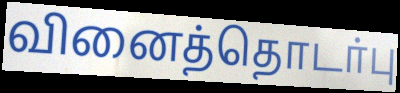
வினைத்தொடர்பு